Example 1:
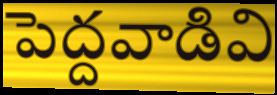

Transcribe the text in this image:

పెద్దవాడివి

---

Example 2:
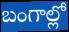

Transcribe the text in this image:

బంగాల్లో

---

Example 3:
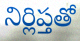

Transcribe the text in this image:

నిర్లిప్తతో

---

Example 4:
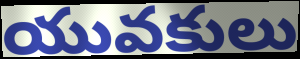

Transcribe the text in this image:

యువకులు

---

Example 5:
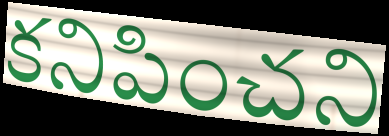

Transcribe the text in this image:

కనిపించని